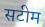
सटीम